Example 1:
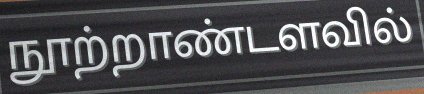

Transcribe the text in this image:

நூற்றாண்டளவில்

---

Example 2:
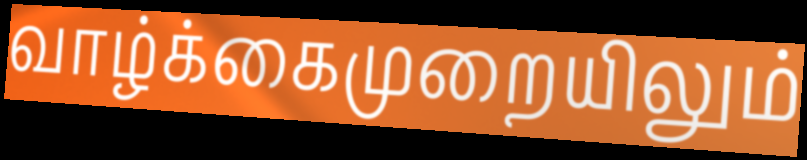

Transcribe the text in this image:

வாழ்க்கைமுறையிலும்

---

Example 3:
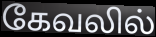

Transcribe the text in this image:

கேவலில்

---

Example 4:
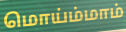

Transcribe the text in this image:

மொய்ம்மாம்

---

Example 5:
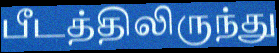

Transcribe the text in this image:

பீடத்திலிருந்து